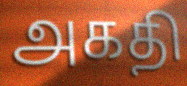
அகதி